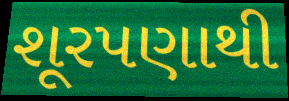
શૂરપણાથી